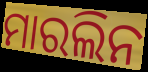
ମାରଲିନ